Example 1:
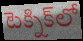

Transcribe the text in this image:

టెక్నిక్‌లో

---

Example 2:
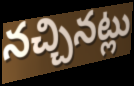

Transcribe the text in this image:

నచ్చినట్లు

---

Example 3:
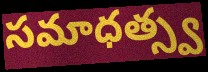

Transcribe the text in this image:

సమాధత్స్వ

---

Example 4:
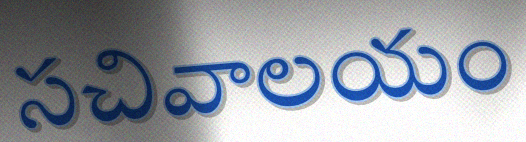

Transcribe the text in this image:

సచివాలయం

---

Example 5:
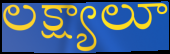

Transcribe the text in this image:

లక్ష్యాలూ